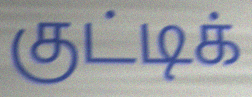
குட்டிக்